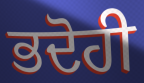
ਭਦੋਹੀ